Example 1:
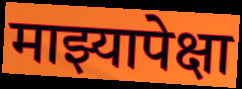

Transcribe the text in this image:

माझ्यापेक्षा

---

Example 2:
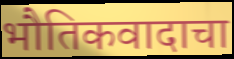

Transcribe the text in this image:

भौतिकवादाचा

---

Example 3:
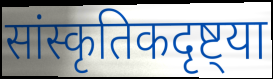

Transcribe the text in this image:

सांस्कृतिकदृष्ट्या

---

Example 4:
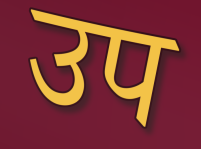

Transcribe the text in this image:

उप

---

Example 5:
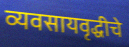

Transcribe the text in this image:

व्यवसायवृद्धीचे